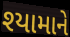
શ્યામાને